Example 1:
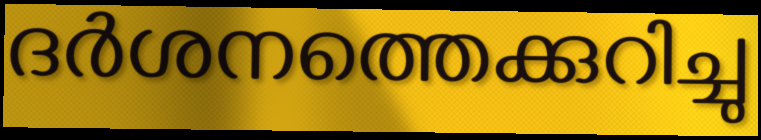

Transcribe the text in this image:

ദർശനത്തെക്കുറിച്ചു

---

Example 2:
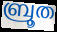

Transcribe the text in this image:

ബ്രൂത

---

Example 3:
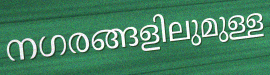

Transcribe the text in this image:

നഗരങ്ങളിലുമുള്ള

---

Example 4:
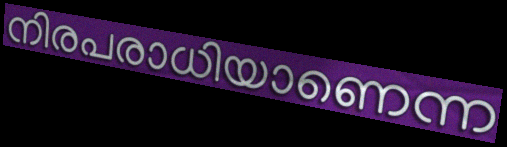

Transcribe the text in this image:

നിരപരാധിയാണെന്ന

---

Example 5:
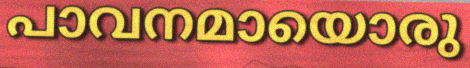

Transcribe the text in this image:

പാവനമായൊരു